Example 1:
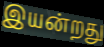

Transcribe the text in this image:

இயன்றது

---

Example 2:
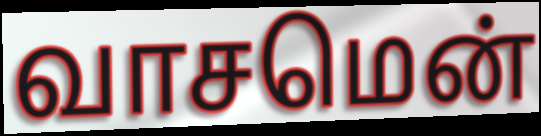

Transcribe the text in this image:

வாசமென்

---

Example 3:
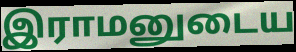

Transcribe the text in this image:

இராமனுடைய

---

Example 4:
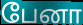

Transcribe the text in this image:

பேனா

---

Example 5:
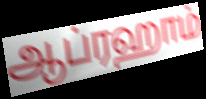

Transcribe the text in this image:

ஆப்ரஹாம்